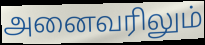
அனைவரிலும்